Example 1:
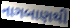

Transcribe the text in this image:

નાગબાણથી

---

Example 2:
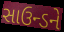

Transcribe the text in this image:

સાઉન્ડને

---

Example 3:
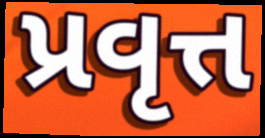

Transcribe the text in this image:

પ્રવૃત્ત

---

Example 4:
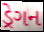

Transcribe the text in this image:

ડ્રેગન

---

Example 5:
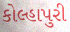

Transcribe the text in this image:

કોલ્હાપુરી